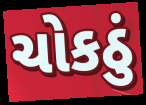
ચોકઠું